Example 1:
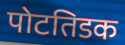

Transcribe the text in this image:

पोटतिडक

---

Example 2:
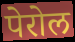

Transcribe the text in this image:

पेरोल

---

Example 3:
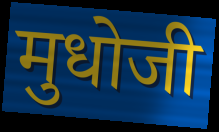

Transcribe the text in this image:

मुधोजी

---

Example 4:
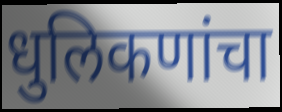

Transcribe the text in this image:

धुलिकणांचा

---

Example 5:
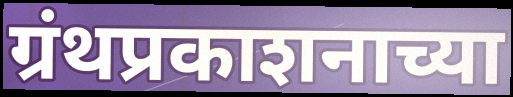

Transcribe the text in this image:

ग्रंथप्रकाशनाच्या